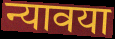
न्यावया